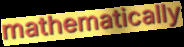
mathematically